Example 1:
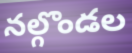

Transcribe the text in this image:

నల్గొండల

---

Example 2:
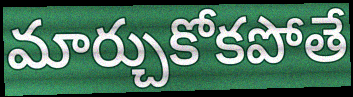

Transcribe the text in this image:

మార్చుకోకపోతే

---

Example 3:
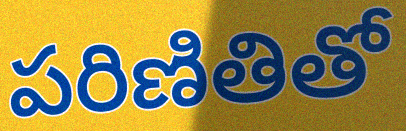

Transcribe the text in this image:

పరిణితితో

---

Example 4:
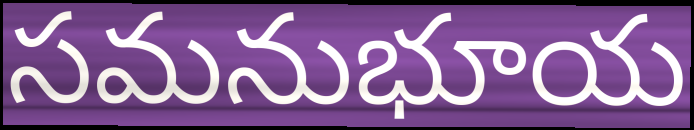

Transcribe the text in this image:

సమనుభూయ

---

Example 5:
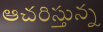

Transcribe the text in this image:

ఆచరిస్తున్న